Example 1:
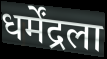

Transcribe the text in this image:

धर्मेंद्रला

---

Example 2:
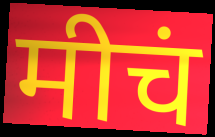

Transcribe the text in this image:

मीचं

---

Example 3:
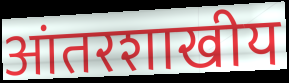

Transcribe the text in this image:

आंतरशाखीय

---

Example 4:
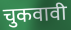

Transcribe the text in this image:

चुकवावी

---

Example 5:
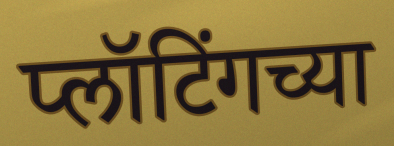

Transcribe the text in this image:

प्लॉटिंगच्या